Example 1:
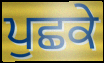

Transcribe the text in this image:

ਪੁਛਕੇ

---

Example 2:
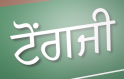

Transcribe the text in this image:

ਟੋਂਗਜੀ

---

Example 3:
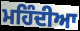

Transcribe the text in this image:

ਮਹਿੰਦੀਆ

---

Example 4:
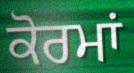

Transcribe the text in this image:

ਕੋਰਮਾਂ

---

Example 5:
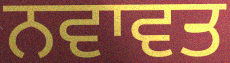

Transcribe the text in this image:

ਨਵਾਵਤ